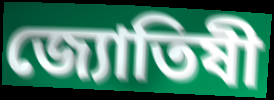
জ্যোতিষী